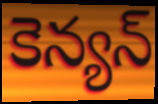
కెన్యన్